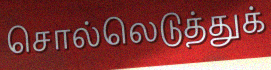
சொல்லெடுத்துக்